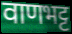
वाणभट्ट